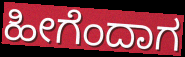
ಹೀಗೆಂದಾಗ